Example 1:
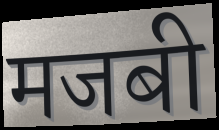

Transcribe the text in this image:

मजबी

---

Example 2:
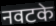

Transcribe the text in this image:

नवटके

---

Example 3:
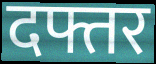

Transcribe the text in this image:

दफ्तर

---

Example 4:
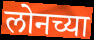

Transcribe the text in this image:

लोनच्या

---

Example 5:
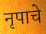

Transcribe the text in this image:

नृपाचे